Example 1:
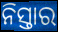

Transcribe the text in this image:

ନିସ୍ତାର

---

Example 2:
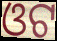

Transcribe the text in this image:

ଓଟ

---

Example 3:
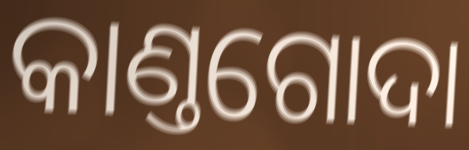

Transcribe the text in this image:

କାଣ୍ତଗୋଦା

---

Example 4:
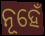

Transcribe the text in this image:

ନୂହେଁ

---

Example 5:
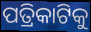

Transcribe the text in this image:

ପତ୍ରିକାଟିକୁ